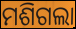
ମଶିଗଲା